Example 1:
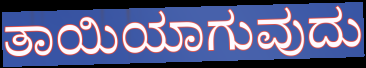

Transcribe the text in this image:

ತಾಯಿಯಾಗುವುದು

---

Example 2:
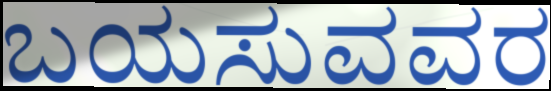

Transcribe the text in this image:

ಬಯಸುವವರ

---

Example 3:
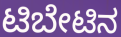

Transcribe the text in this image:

ಟಿಬೇಟಿನ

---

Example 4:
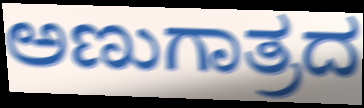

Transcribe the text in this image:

ಅಣುಗಾತ್ರದ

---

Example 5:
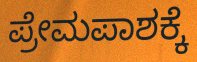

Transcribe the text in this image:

ಪ್ರೇಮಪಾಶಕ್ಕೆ